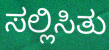
ಸಲ್ಲಿಸಿತು